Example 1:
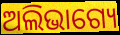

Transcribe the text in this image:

ଅଲିଭାଗ୍ୟେ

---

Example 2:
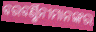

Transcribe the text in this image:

ବରବର୍ଣ୍ଣିନୀମାନଙ୍କର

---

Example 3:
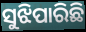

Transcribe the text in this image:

ସୁଝିପାରିଛି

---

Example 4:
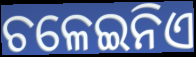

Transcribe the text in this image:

ଚଳେଇନିଏ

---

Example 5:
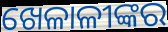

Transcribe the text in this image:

ଖେଳାଳୀଙ୍କର